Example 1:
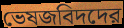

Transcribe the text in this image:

ভেষজবিদদের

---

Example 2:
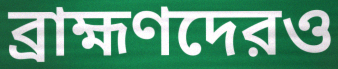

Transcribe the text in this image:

ব্রাহ্মণদেরও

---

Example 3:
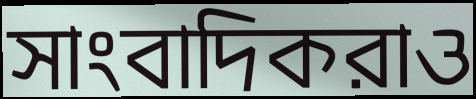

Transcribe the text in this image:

সাংবাদিকরাও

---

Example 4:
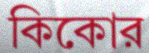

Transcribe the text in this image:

কিকোর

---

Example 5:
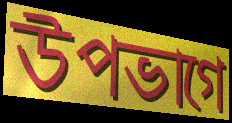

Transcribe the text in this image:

উপভাগে